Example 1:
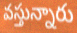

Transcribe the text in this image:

వస్తున్నారు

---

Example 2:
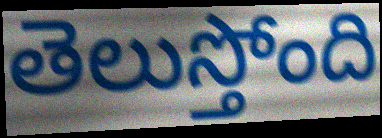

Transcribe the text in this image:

తెలుస్తోంది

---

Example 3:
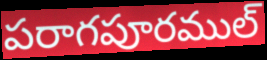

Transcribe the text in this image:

పరాగపూరముల్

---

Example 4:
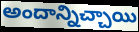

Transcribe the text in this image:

అందాన్నిచ్చాయి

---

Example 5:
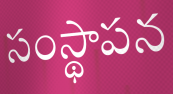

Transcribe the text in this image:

సంస్థాపన